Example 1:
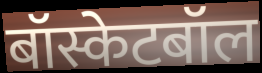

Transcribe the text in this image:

बॉस्केटबॉल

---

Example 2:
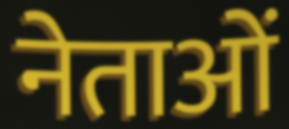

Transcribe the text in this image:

नेताओं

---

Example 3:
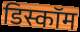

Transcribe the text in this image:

डिस्कॉम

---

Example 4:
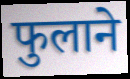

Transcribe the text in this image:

फुलाने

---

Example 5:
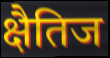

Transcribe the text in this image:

क्षैतिज